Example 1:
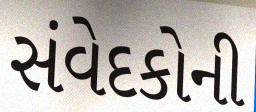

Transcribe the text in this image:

સંવેદકોની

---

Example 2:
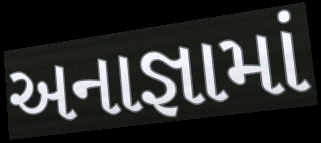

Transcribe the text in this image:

અનાજ્ઞામાં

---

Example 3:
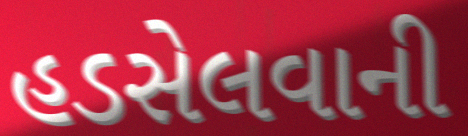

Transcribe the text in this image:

હડસેલવાની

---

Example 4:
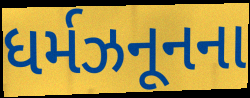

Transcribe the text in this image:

ધર્મઝનૂનના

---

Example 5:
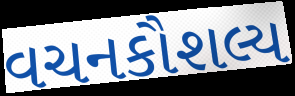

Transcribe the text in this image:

વચનકૌશલ્ય